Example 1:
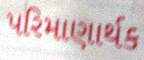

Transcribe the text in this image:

પરિમાણાર્થક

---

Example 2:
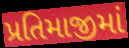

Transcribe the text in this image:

પ્રતિમાજીમાં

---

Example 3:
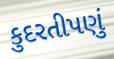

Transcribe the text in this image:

કુદરતીપણું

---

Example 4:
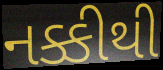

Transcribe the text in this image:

નક્કીથી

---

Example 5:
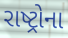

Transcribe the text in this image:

રાષ્ટ્રોના